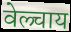
वेल्चाय